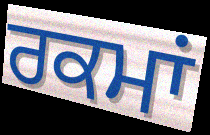
ਰਕਮਾਂ